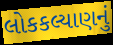
લોકકલ્યાણનું